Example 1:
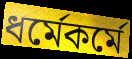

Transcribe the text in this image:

ধর্মেকর্মে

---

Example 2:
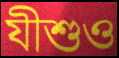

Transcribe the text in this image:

যীশুও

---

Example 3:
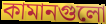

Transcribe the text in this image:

কামানগুলো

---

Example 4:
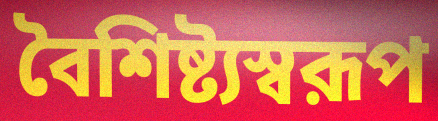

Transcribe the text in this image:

বৈশিষ্ট্যস্বরূপ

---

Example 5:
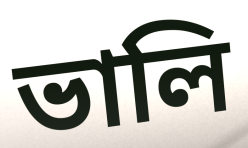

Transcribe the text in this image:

ভালি